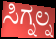
ಸಿಗ್ನಲ್ನ